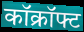
कॉक्रॉफ्ट